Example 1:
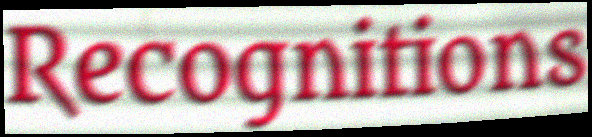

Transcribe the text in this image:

Recognitions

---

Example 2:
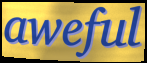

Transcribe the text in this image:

aweful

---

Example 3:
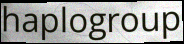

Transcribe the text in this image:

haplogroup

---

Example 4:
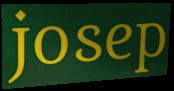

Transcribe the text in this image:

josep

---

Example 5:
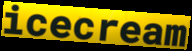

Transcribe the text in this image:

icecream